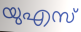
യുഎസ്